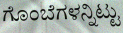
ಗೊಂಬೆಗಳನ್ನಿಟ್ಟು